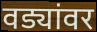
वड्यांवर